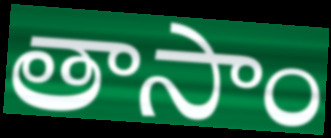
తాసాం